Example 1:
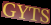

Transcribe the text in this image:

GYTS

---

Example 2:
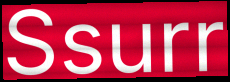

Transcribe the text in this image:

Ssurr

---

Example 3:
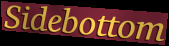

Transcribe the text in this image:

Sidebottom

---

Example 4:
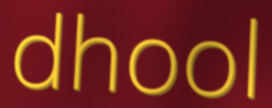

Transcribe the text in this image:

dhool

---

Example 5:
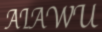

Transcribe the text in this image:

AIAWU